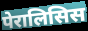
पेरालिसिस